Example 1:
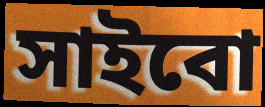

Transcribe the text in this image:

সাইবো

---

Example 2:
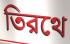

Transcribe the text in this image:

তিরথে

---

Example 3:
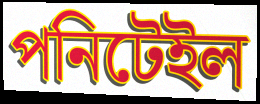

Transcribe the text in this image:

পনিটেইল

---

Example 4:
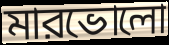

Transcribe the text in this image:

মারভোলো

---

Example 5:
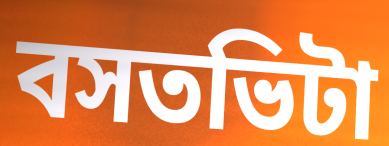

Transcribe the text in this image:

বসতভিটা